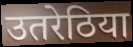
उतरेठिया